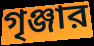
গৃঞ্জার